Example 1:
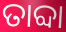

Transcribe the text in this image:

ତାବ୍ଦା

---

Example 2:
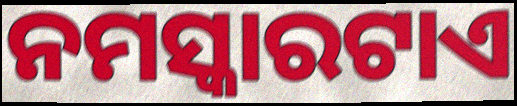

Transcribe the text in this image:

ନମସ୍କାରଟାଏ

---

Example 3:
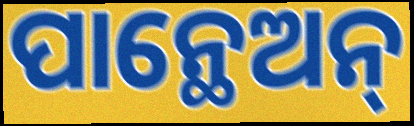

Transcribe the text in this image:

ପାନ୍ଥେଅନ୍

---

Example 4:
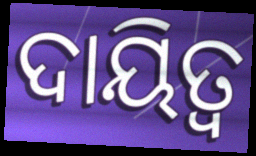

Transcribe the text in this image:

ଦାୟିତ୍ବ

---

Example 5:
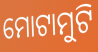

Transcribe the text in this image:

ମୋଟାମୁଟି